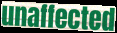
unaffected